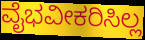
ವೈಭವೀಕರಿಸಿಲ್ಲ